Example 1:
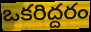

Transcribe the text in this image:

ఒకరిద్దరం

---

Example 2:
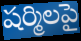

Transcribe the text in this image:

షర్మిలపై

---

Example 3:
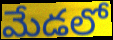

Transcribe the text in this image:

మేడలో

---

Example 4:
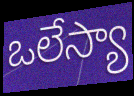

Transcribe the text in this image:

ఒలేస్యా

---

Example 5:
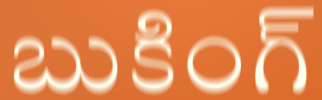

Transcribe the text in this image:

బుకింగ్